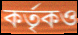
কর্তৃকও